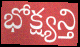
భోక్ష్యన్తి